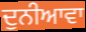
ਦੁਨੀਆਵਾ